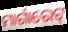
ମାର୍ଗାରେଟ୍